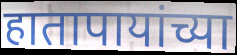
हातापायांच्या